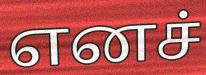
எனச்